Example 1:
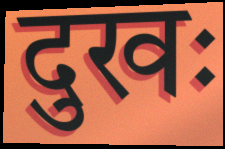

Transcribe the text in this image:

दुखः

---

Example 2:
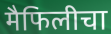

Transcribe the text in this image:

मैफिलीचा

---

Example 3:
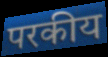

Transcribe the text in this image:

परकीय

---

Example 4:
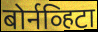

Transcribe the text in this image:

बोर्नव्हिटा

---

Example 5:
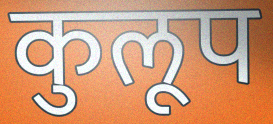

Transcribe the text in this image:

कुलूप